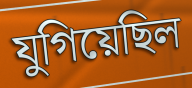
যুগিয়েছিল